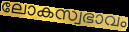
ലോകസ്വഭാവം